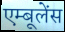
एम्बूलेंस